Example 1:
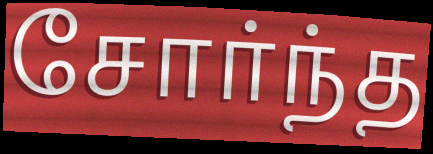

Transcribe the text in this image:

சோர்ந்த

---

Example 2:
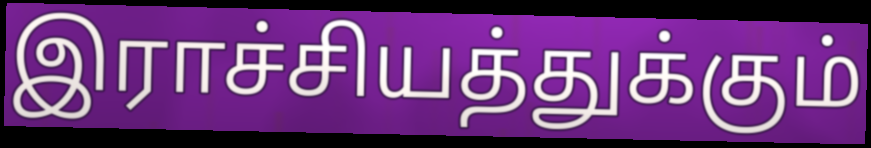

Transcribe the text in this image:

இராச்சியத்துக்கும்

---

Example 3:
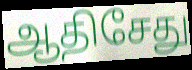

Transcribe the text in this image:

ஆதிசேது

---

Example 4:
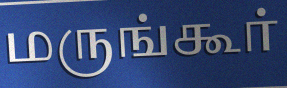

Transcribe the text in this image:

மருங்கூர்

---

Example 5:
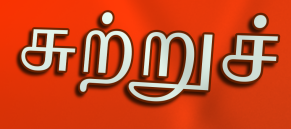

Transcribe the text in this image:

சுற்றுச்